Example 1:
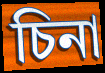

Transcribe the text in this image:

চিনা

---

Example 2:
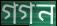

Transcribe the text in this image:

গগন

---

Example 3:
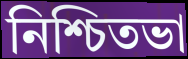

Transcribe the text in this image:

নিশ্চিতভা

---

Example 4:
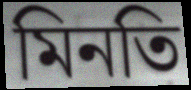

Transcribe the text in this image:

মিনতি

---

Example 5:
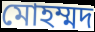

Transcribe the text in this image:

মোহম্মদ